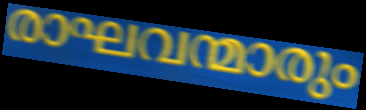
രാഘവന്മാരും